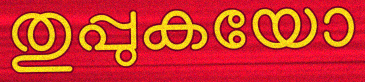
തുപ്പുകയോ